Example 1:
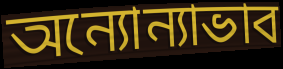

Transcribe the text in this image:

অন্যোন্যাভাব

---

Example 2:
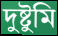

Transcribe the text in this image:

দুষ্টুমি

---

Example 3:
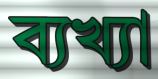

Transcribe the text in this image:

ব্যখ্যা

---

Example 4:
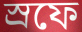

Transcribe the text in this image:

স্রফে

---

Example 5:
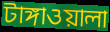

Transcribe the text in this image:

টাঙ্গাওয়ালা